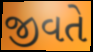
જીવતે